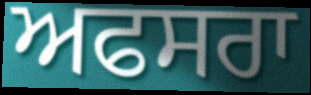
ਅਫਸਰਾ